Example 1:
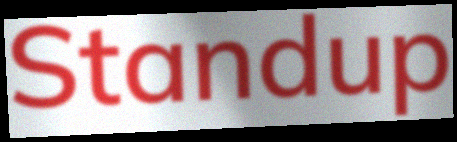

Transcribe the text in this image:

Standup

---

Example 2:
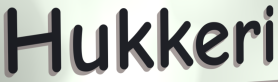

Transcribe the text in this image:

Hukkeri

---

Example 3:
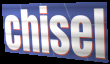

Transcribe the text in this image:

chisel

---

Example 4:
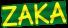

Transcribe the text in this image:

ZAKA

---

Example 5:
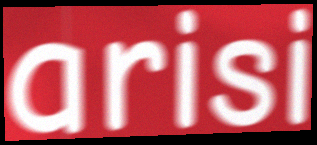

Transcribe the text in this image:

arisi